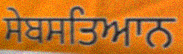
ਸੇਬਸਤਿਆਨ